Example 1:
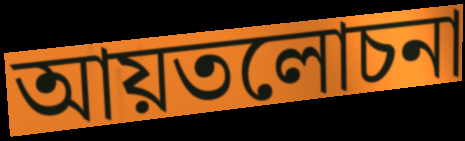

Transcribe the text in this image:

আয়তলোচনা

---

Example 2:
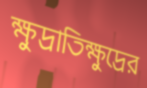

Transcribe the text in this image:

ক্ষুদ্রাতিক্ষুদ্রের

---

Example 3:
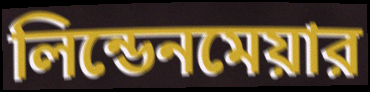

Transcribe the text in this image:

লিন্ডেনমেয়ার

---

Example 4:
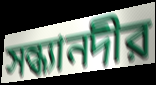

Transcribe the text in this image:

সন্ধ্যানদীর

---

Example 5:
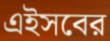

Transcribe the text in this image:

এইসবের